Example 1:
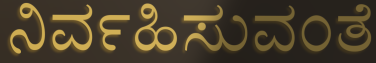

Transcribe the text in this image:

ನಿರ್ವಹಿಸುವಂತೆ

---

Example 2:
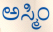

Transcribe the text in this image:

ಅಸ್ಮಿಂ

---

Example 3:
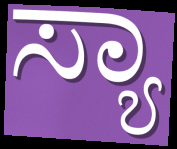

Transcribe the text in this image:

ಸ್ಯಾ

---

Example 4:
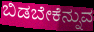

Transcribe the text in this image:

ಬಿಡಬೇಕೆನ್ನುವ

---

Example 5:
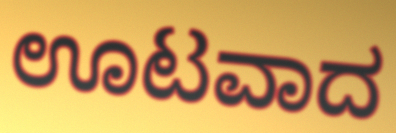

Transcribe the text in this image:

ಊಟವಾದ